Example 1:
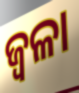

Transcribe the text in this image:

ଜ୍ୱଳା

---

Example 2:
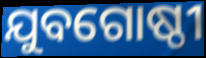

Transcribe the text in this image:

ଯୁବଗୋଷ୍ଠୀ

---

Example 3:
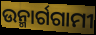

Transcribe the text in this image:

ଉନ୍ମାର୍ଗଗାମୀ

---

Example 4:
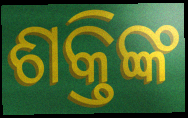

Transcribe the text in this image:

ଶକ୍ତିଙ୍କ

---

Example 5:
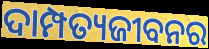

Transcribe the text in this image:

ଦାମ୍ପତ୍ୟଜୀବନର